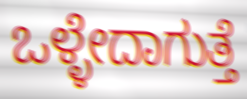
ಒಳ್ಳೇದಾಗುತ್ತೆ